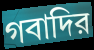
গবাদির